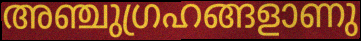
അഞ്ചുഗ്രഹങ്ങളാണു